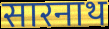
सारनाथ